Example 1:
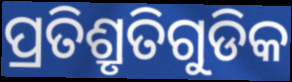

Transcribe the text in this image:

ପ୍ରତିଶ୍ରୃତିଗୁଡିକ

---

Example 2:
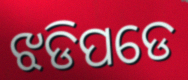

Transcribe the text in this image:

ଝଡିପଡେ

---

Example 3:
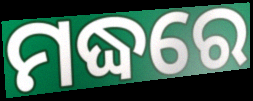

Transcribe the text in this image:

ମଦ୍ଧରେ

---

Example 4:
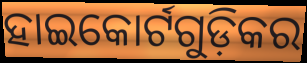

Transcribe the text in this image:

ହାଇକୋର୍ଟଗୁଡ଼ିକର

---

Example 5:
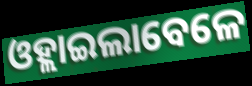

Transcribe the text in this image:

ଓହ୍ଲାଇଲାବେଳେ